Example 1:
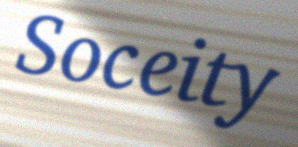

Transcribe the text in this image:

Soceity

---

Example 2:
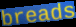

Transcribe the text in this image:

breads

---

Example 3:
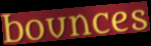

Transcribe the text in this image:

bounces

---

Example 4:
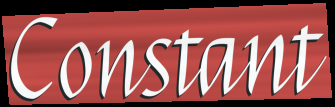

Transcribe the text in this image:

Constant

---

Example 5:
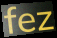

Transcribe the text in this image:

fez